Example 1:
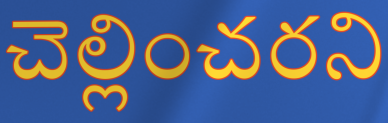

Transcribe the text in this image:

చెల్లించరని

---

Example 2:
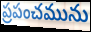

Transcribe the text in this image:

ప్రపంచమును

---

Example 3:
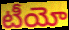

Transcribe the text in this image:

టీయో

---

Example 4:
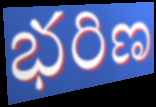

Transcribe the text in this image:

భరిణ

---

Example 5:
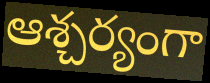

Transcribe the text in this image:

ఆశ్చర్యంగా